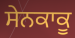
ਸੇਨਕਾਕੂ